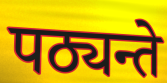
पठ्यन्ते